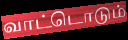
வாட்டொடும்